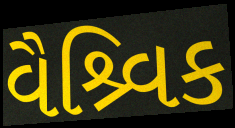
વૈશ્ર્વિક